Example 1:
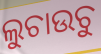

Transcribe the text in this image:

ଲୁଚାଉଚୁ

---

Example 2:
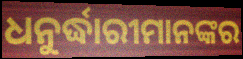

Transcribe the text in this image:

ଧନୁର୍ଦ୍ଧାରୀମାନଙ୍କର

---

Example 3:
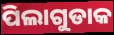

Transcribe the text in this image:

ପିଲାଗୁଡାକ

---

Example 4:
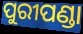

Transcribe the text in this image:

ପୁରୀପଣ୍ଡା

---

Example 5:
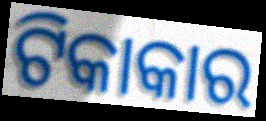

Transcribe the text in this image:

ଟିକାକାର